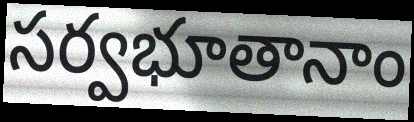
సర్వభూతానాం